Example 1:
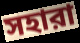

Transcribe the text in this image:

সহারা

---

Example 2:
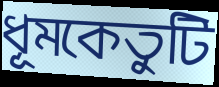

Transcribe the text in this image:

ধূমকেতুটি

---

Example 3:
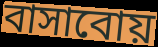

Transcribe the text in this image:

বাসাবোয়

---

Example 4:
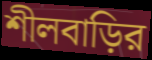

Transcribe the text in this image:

শীলবাড়ির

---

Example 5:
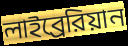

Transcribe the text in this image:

লাইব্রেরিয়ান